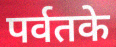
पर्वतके